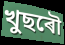
খুছৰৌ